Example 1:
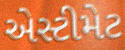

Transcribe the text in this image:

એસ્ટીમેટ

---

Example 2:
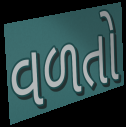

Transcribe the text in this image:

વળતો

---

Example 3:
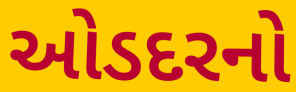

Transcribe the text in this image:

ઓડદરનો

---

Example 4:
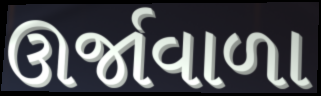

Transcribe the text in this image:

ઊર્જાવાળા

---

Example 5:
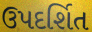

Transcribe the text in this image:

ઉપદર્શિત